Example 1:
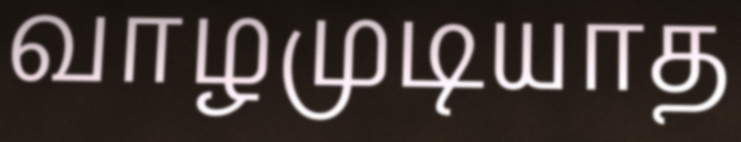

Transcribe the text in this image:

வாழமுடியாத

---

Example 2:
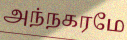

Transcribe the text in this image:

அந்நகரமே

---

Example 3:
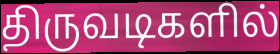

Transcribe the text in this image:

திருவடிகளில்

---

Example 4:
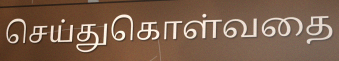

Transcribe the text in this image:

செய்துகொள்வதை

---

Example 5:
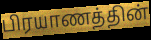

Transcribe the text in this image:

பிரயாணத்தின்